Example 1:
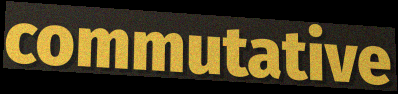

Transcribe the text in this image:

commutative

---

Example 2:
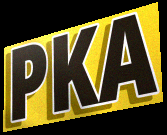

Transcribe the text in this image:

PKA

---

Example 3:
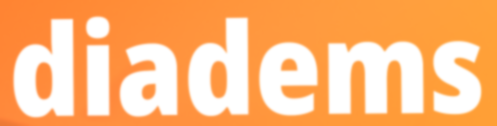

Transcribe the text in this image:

diadems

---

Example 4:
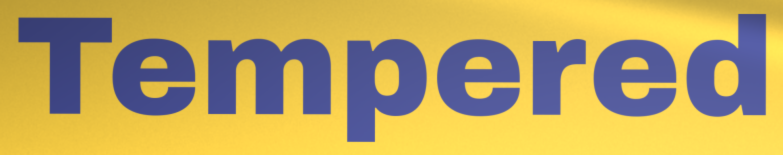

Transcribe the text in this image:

Tempered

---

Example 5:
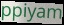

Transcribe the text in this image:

ppiyam